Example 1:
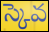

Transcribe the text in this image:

స్కెవ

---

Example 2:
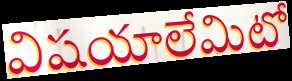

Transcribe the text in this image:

విషయాలేమిటో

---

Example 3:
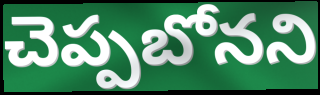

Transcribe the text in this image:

చెప్పబోనని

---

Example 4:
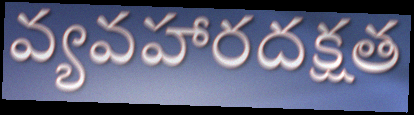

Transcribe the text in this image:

వ్యవహారదక్షత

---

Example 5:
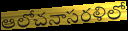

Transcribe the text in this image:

ఆలోచనాసరళిలో